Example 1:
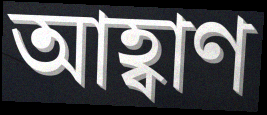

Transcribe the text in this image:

আহ্বাণ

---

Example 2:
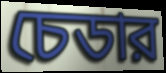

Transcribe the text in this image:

চেডার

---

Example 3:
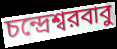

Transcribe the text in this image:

চন্দ্রেশ্বরবাবু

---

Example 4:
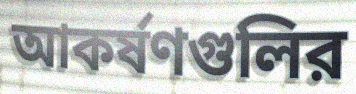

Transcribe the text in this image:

আকর্ষণগুলির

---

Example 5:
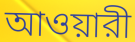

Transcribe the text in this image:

আওয়ারী